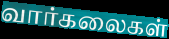
வார்கலைகள்